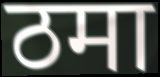
ठमा